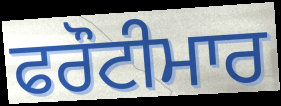
ਫਰੌਟੀਮਾਰ